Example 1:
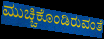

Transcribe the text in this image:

ಮುಚ್ಚಿಕೊಂಡಿರುವಂತೆ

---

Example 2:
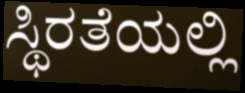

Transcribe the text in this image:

ಸ್ಥಿರತೆಯಲ್ಲಿ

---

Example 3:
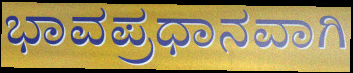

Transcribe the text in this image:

ಭಾವಪ್ರಧಾನವಾಗಿ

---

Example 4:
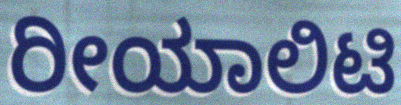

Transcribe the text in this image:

ರೀಯಾಲಿಟಿ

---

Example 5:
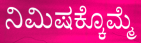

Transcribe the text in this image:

ನಿಮಿಷಕ್ಕೊಮ್ಮೆ